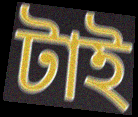
টাই